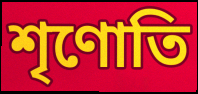
শৃণোতি